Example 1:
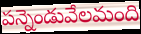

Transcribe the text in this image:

పన్నెండువేలమంది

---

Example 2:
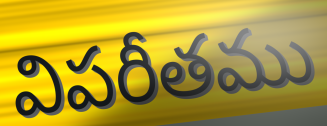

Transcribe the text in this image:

విపరీతము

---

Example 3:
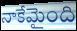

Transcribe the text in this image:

నాకేమైంది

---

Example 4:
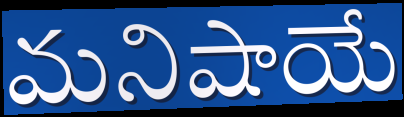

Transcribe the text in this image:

మనిషాయే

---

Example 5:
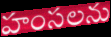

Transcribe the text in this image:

హంసలను